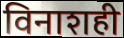
विनाशही